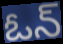
ఓన్